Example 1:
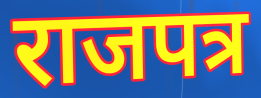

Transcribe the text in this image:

राजपत्र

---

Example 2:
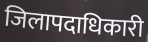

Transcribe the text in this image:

जिलापदाधिकारी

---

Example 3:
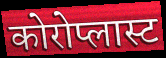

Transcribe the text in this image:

कोरोप्लास्ट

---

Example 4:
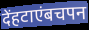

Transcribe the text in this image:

देंहटाएंबचपन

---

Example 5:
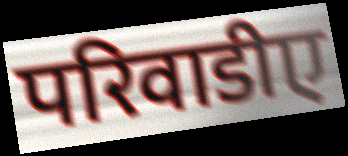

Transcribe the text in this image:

परिवाडीए